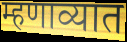
म्हणाव्यात